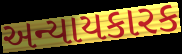
અન્યાયકારક